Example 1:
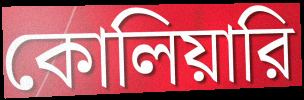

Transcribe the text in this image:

কোলিয়ারি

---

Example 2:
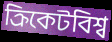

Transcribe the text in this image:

ক্রিকেটবিশ্ব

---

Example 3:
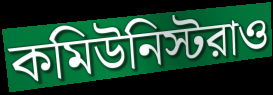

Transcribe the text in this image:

কমিউনিস্টরাও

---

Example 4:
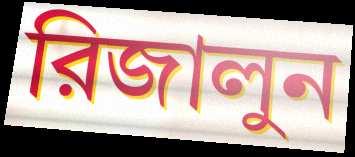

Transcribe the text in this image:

রিজালুন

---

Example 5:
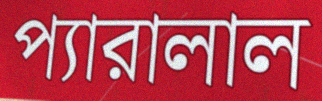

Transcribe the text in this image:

প্যারালাল